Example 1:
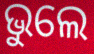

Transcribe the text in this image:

ଭୁଲେ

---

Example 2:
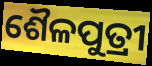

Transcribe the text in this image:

ଶୈଳପୁତ୍ରୀ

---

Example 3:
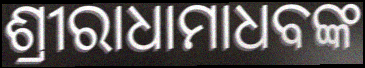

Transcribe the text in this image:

ଶ୍ରୀରାଧାମାଧବଙ୍କ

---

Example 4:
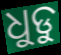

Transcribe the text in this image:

ଧୁଡୁ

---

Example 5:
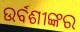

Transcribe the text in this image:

ଉର୍ବଶୀଙ୍କର